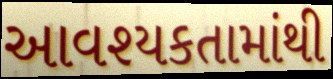
આવશ્યકતામાંથી